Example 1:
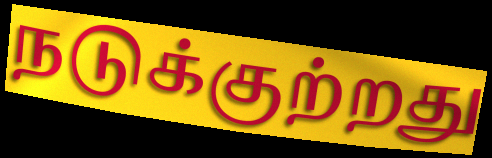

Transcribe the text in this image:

நடுக்குற்றது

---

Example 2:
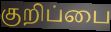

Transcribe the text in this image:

குறிப்பை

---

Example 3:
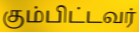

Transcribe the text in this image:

கும்பிட்டவர்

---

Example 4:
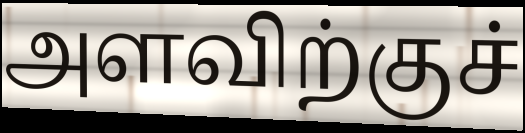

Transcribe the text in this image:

அளவிற்குச்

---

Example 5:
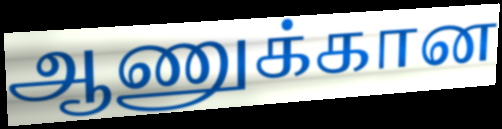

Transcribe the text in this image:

ஆணுக்கான